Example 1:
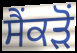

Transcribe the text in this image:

ਸੈਂਕੜੋਂ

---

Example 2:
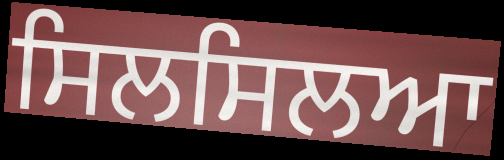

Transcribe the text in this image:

ਸਿਲਸਿਲਆ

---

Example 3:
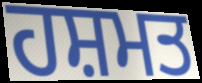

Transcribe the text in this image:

ਹਸ਼ਮਤ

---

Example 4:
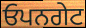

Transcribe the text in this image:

ਓਪਨਗੇਟ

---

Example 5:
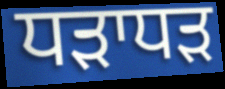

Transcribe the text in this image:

ਧੜਾਧੜ